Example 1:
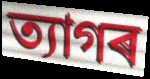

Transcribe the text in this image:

ত্যাগৰ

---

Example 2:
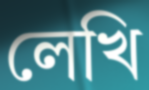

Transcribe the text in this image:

লেখি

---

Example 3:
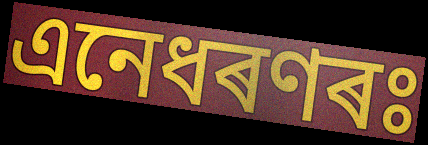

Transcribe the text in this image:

এনেধৰণৰঃ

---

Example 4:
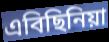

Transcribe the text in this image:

এবিছিনিয়া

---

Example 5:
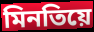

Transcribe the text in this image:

মিনতিয়ে